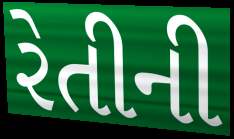
રેતીની